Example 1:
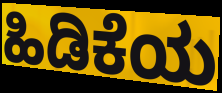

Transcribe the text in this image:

ಹಿಡಿಕೆಯ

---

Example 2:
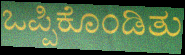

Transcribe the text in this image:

ಒಪ್ಪಿಕೊಂಡಿತು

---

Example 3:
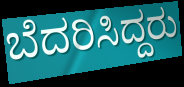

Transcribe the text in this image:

ಬೆದರಿಸಿದ್ದರು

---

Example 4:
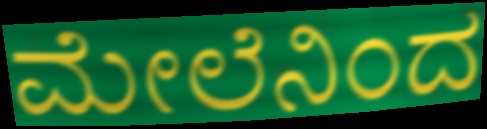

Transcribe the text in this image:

ಮೇಲೆನಿಂದ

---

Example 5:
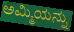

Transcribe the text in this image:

ಅಮ್ಮಿಯನ್ನು